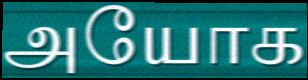
அயோக